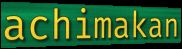
achimakan